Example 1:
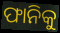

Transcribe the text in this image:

ଫାନିକୁ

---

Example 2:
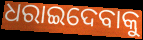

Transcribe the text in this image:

ଧରାଇଦେବାକୁ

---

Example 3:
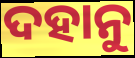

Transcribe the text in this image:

ଦହାନୁ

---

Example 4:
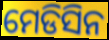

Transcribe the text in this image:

ମେଡିସିନ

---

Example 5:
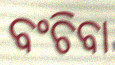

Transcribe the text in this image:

ବଂଚିବା